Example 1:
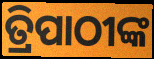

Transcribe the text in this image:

ତ୍ରିପାଠୀଙ୍କ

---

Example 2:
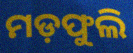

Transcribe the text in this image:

ମଡ଼ଫୁଲି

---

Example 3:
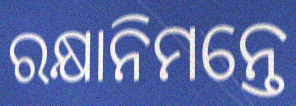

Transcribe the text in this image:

ରକ୍ଷାନିମନ୍ତେ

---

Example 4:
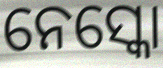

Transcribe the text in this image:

ନେସ୍କୋ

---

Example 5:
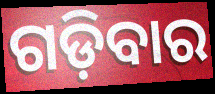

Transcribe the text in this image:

ଗଡ଼ିବାର